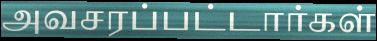
அவசரப்பட்டார்கள்